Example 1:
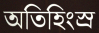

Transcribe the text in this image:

অতিহিংস্র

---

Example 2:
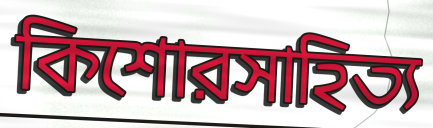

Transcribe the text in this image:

কিশোরসাহিত্য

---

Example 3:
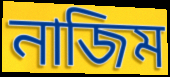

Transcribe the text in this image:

নাজিম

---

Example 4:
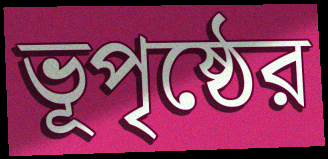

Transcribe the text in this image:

ভূপৃষ্ঠের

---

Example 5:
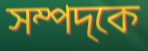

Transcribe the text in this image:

সম্পদ্‌কে